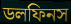
ডলফিনস